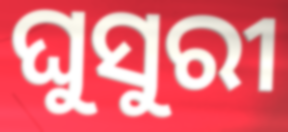
ଘୁସୁରୀ